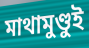
মাথামুণ্ডুই